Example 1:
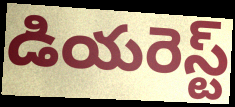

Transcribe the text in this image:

డియరెస్ట్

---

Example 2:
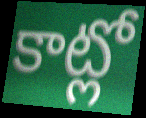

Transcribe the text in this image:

కాట్లో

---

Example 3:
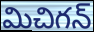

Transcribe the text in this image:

మిచిగన్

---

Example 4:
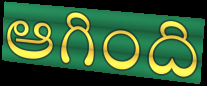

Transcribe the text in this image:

ఆగింది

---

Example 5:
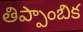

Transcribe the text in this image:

తిప్పాంబిక